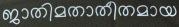
ജാതിമതാതീതമായ